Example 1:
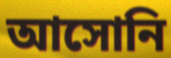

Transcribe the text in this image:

আসোনি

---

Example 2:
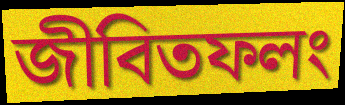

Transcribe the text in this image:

জীবিতফলং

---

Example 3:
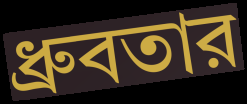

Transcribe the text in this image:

ধ্রুবতার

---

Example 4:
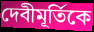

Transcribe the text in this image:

দেবীমূর্তিকে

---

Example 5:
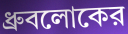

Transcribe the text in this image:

ধ্রুবলোকের